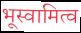
भूस्वामित्व